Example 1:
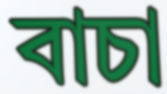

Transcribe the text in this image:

বাচা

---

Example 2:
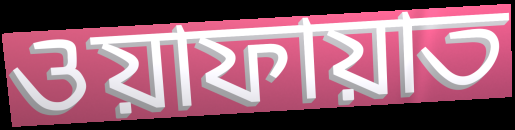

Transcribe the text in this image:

ওয়াফায়াত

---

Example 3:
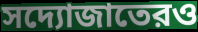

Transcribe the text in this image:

সদ্যোজাতেরও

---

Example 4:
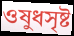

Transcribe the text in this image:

ওষুধসৃষ্ট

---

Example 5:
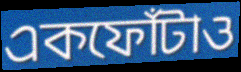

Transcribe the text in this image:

একফোঁটাও